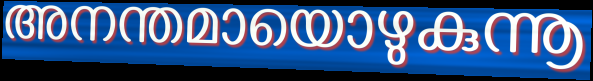
അനന്തമായൊഴുകുന്നൂ